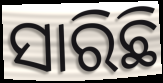
ସାରିଛି